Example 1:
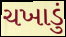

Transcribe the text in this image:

ચખાડું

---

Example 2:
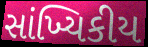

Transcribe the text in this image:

સાંખ્યિકીય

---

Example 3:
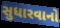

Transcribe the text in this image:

સુધારવાનો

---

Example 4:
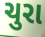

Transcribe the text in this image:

ચુરા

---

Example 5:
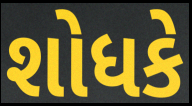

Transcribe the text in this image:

શોધકે